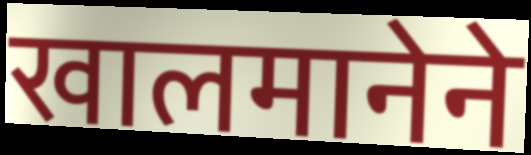
खालमानेने